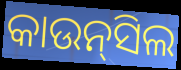
କାଉନ୍‍ସିଲ